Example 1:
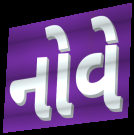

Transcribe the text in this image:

નોવે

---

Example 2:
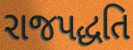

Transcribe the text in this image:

રાજપદ્ધતિ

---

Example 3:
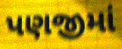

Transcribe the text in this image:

પણજીમાં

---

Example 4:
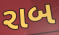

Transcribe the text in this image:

રાબ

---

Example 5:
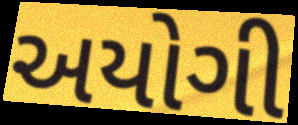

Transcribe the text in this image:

અયોગી